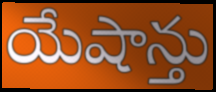
యేషాన్తు